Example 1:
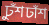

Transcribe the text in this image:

ঢুঁশঢাঁশ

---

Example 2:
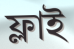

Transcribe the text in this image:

ফ্লাই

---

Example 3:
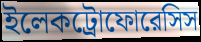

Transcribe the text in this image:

ইলেকট্রোফোরেসিস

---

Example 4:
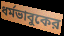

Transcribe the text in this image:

ধর্মভাবুকের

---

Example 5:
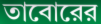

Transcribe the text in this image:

তাবোরের